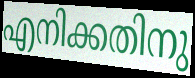
എനിക്കതിനു